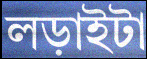
লড়াইটা